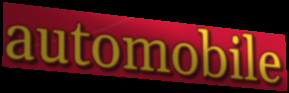
automobile